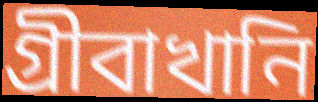
গ্রীবাখানি